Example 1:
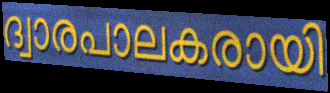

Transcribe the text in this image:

ദ്വാരപാലകരായി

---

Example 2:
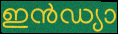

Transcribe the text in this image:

ഇൻഡ്യാ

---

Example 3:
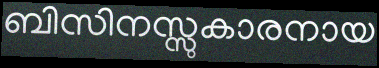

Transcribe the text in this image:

ബിസിനസ്സുകാരനായ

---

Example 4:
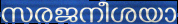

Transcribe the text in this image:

സരജനീശയാ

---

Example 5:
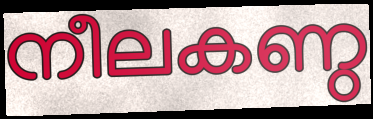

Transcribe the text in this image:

നീലകണ്ഠ